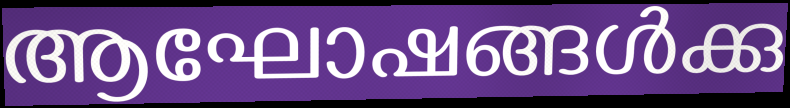
ആഘോഷങ്ങൾക്കു